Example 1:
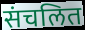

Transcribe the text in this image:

संचलित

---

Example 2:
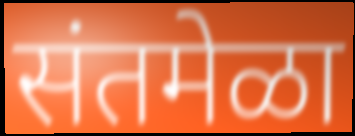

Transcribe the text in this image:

संतमेळा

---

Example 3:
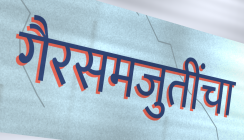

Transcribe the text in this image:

गैरसमजुतींचा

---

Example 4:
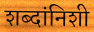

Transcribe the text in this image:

शब्दांनिशी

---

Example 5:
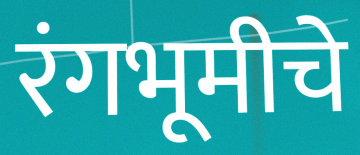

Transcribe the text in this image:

रंगभूमीचे